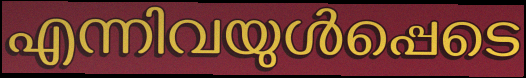
എന്നിവയുൾപ്പെടെ